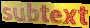
subtext